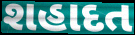
શહાદત